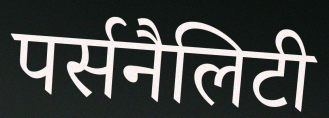
पर्सनैलिटी